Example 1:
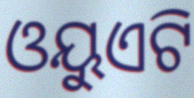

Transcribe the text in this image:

ଓୟୁଏଟି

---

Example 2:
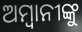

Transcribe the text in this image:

ଅମ୍ବାନୀଙ୍କୁ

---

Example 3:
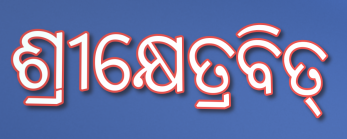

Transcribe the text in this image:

ଶ୍ରୀକ୍ଷେତ୍ରବିତ୍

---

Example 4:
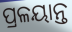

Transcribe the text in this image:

ପ୍ରଳୟାନ୍ତ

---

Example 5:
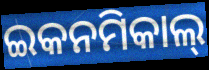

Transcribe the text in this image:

ଇକନମିକାଲ୍